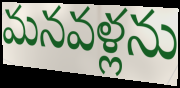
మనవళ్లను